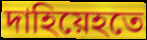
দাহিয়েহতে